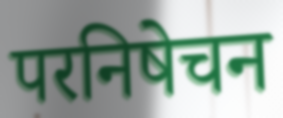
परनिषेचन